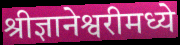
श्रीज्ञानेश्वरीमध्ये